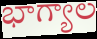
భాగ్యాల